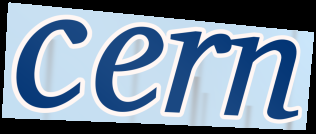
cern